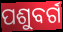
ପଶୁବର୍ଗ